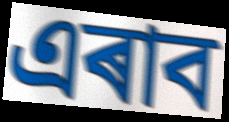
এৰাব